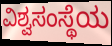
ವಿಶ್ವಸಂಸ್ಥೆಯ